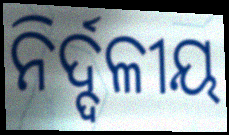
ନିର୍ଦ୍ଦଳୀୟ